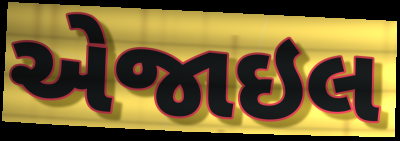
એજાઇલ